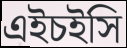
এইচইসি